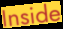
Inside